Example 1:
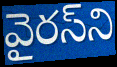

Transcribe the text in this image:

వైరస్‌ని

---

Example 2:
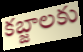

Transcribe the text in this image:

కబ్జాలకు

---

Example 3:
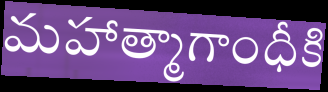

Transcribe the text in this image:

మహాత్మాగాంధీకి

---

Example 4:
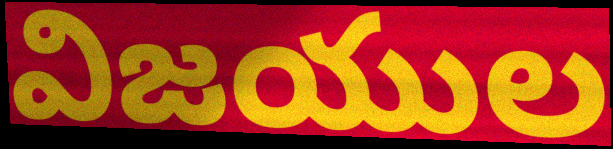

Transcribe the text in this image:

విజయుల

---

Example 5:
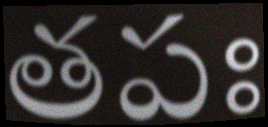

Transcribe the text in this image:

తపః